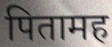
पितामह